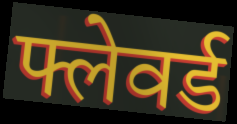
फ्लेवर्ड